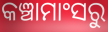
କଞ୍ଚାମାଂସରୁ